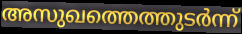
അസുഖത്തെത്തുടർന്ന്